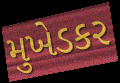
મુખેડકર